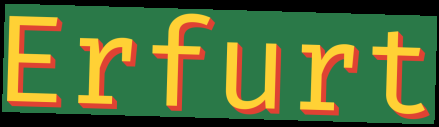
Erfurt